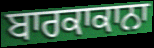
ਬਾਰਕਾਕਾਨਾ